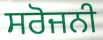
ਸਰੋਜਨੀ